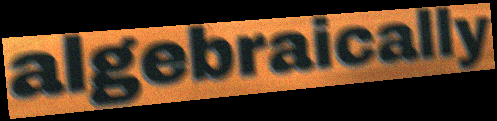
algebraically